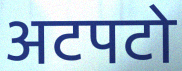
अटपटो